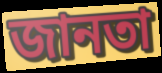
জানতা